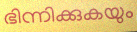
ഭിന്നിക്കുകയും